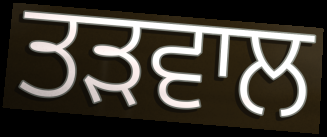
ਤੜਵਾਲ